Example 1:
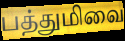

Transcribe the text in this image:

பத்துமிவை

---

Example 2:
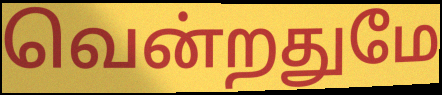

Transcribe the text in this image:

வென்றதுமே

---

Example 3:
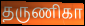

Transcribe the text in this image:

தருணிகா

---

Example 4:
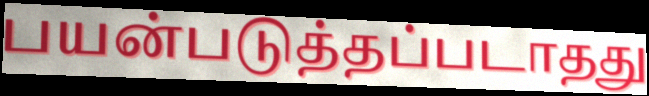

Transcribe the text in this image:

பயன்படுத்தப்படாதது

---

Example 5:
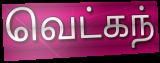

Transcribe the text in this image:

வெட்கந்